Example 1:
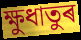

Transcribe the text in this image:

ক্ষুধাতুৰ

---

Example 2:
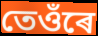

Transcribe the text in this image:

তেওঁৰে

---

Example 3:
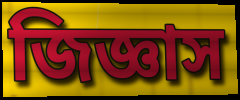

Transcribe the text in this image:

জিজ্ঞাস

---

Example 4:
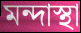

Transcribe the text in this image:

মন্দাস্থা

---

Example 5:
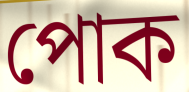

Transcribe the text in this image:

পোক